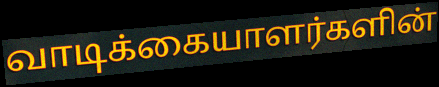
வாடிக்கையாளர்களின்